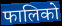
फालिको